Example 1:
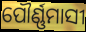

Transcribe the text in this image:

ପୌର୍ଣ୍ଣମାସୀ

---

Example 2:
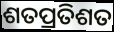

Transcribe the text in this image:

ଶତପ୍ରତିଶତ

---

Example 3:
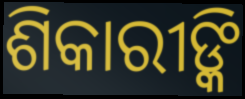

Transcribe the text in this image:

ଶିକାରୀଙ୍କି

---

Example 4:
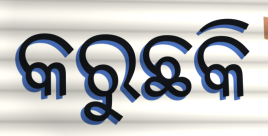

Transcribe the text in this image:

କରୁଛକି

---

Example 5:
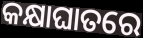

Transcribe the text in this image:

କକ୍ଷାଘାତରେ